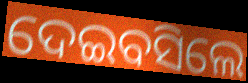
ଦେଇବସିଲେ